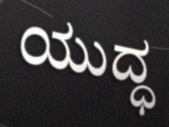
ಯುದ್ಧ